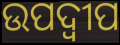
ଉପଦ୍ବୀପ